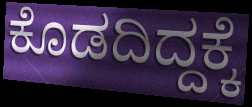
ಕೊಡದಿದ್ದಕ್ಕೆ